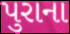
પુરાના